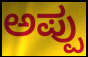
ಅಪ್ಪು